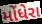
મોંધેરા